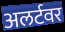
अलर्टवर